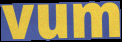
vum